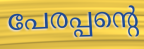
പേരപ്പന്റെ